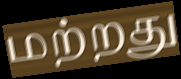
மற்றது